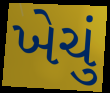
ખેચું